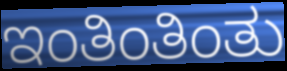
ಇಂತಿಂತಿಂತು